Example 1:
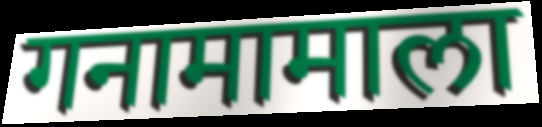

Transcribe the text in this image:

गनामामाला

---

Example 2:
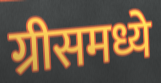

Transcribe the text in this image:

ग्रीसमध्ये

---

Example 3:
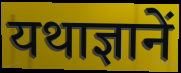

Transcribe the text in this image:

यथाज्ञानें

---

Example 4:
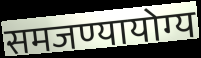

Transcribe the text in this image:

समजण्यायोग्य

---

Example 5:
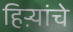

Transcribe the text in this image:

हिऱ्‍यांचे